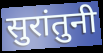
सुरांतुनी